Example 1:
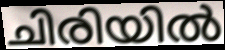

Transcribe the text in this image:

ചിരിയിൽ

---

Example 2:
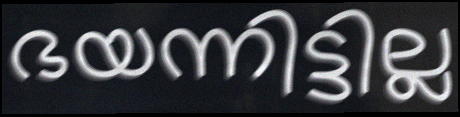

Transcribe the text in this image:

ഭയന്നിട്ടില്ല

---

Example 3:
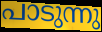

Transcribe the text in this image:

പാടുന്നു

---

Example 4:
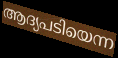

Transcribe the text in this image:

ആദ്യപടിയെന്ന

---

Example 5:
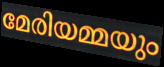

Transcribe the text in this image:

മേരിയമ്മയും